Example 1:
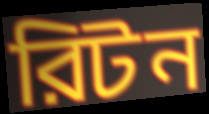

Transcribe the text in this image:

রিটন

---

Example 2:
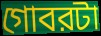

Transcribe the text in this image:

গোবরটা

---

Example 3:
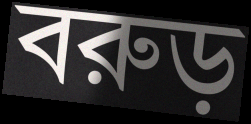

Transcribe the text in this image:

বরুড়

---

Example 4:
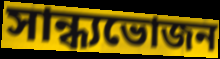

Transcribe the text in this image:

সান্ধ্যভোজন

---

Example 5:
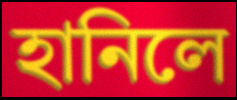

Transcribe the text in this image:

হানিলে